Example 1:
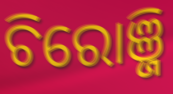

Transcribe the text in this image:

ଚିରୋଞ୍ଜି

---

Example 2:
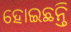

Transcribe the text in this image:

ହୋଇଛନ୍ତି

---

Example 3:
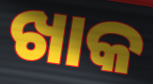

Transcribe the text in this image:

ଖାକ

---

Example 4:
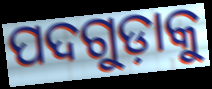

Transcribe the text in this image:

ପଦଗୁଡ଼ାକୁ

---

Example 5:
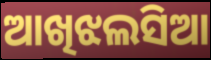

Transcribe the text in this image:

ଆଖିଝଲସିଆ